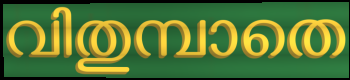
വിതുമ്പാതെ